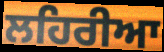
ਲਹਿਰੀਆ